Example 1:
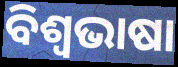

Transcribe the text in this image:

ବିଶ୍ୱଭାଷା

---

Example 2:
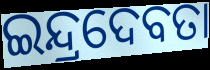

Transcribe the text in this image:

ଇନ୍ଦ୍ରଦେବତା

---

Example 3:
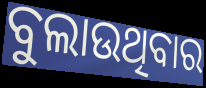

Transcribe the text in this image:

ବୁଲାଉଥିବାର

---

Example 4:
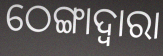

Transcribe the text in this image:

ଠେଙ୍ଗାଦ୍ୱାରା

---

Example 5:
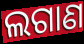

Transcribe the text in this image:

ଲଗାଣ